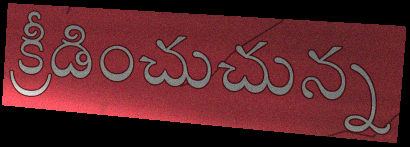
క్రీడించుచున్న